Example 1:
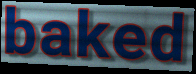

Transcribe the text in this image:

baked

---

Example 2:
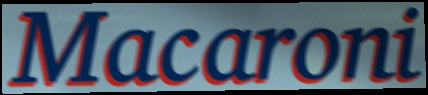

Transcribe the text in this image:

Macaroni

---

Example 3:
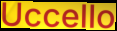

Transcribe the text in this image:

Uccello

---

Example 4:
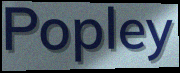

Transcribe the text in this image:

Popley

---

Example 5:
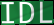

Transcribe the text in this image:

IDL